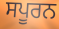
ਸਪੂਰਨ